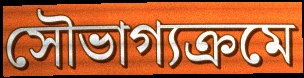
সৌভাগ্যক্ৰমে